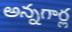
అన్నగార్ల